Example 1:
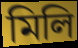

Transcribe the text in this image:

মিলি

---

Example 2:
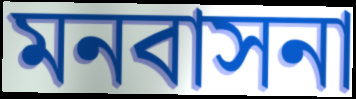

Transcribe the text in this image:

মনবাসনা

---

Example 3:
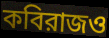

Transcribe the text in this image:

কবিরাজও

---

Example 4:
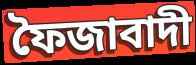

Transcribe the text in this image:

ফৈজাবাদী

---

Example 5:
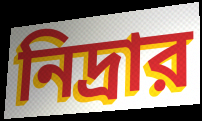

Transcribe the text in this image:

নিদ্রার